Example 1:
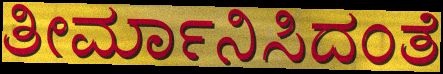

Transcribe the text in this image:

ತೀರ್ಮಾನಿಸಿದಂತೆ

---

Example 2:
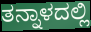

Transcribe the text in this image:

ತನ್ನಾಳದಲ್ಲಿ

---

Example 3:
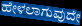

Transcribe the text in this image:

ಹೇಳಲಾಗುವುದೇ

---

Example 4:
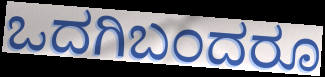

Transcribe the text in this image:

ಒದಗಿಬಂದರೂ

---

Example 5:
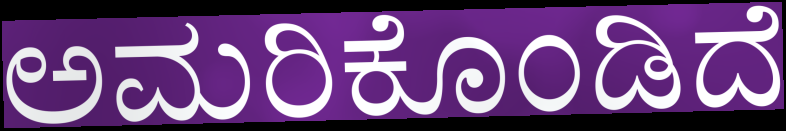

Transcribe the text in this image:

ಅಮರಿಕೊಂಡಿದೆ